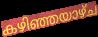
കഴിഞ്ഞയാഴ്ച